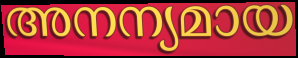
അനന്യമായ